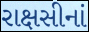
રાક્ષસીનાં